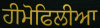
ਹੀਮੋਫਿਲੀਆ